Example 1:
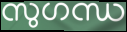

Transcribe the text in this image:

സുഗന്ധ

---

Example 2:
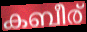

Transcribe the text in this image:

കബീര്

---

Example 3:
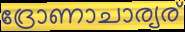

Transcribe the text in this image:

ദ്രോണാചാര്യര്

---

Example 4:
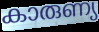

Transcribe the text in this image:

കാരുണ്യ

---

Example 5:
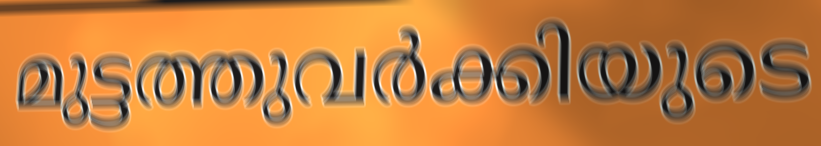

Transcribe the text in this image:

മുട്ടത്തുവർക്കിയുടെ